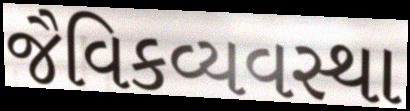
જૈવિકવ્યવસ્થા